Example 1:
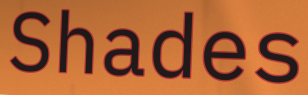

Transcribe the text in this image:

Shades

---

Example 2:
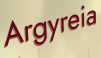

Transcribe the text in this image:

Argyreia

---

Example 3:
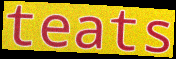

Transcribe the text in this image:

teats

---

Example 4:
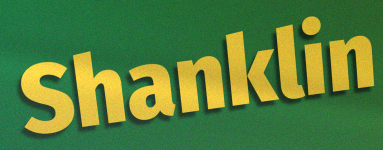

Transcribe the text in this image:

Shanklin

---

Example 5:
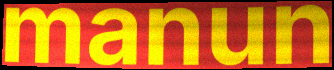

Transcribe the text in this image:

manun